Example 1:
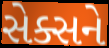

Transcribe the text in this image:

સેક્સને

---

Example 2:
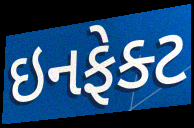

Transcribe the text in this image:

ઇનફેક્ટ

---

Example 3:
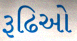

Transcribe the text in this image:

રૂઢિઓ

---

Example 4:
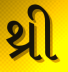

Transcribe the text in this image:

થ્રી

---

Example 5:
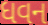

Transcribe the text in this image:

ધવન